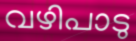
വഴിപാടു